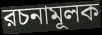
রচনামূলক